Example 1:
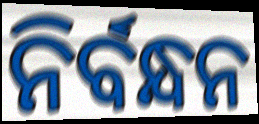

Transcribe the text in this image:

ନିର୍ବନ୍ଧନ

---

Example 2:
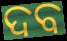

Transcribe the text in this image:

ଦବ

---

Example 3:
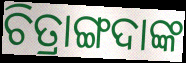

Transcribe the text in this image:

ଚିତ୍ରାଙ୍ଗଦାଙ୍କ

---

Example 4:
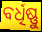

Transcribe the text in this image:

ବର୍ଧିଷ୍ଣୁ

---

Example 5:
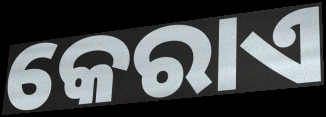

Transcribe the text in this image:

କେରାଏ